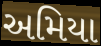
અમિયા